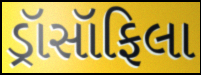
ડ્રૉસૉફિલા